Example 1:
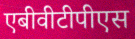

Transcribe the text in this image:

एबीवीटीपीएस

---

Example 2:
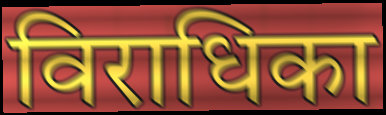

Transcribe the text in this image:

विराधिका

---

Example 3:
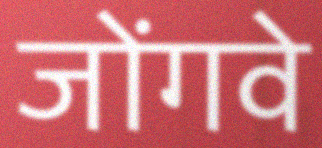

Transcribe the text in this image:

जोंगवे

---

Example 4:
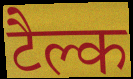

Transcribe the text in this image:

टैल्क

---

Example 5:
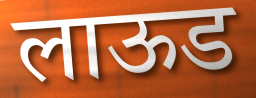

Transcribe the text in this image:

लाऊड